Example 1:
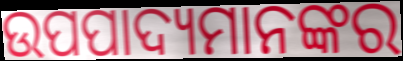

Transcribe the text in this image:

ଉପପାଦ୍ୟମାନଙ୍କର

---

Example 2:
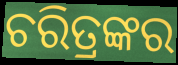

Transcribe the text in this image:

ଚରିତ୍ରଙ୍କର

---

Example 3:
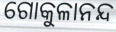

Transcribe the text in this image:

ଗୋକୁଳାନନ୍ଦ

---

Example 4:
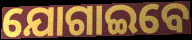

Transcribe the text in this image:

ଯୋଗାଇବେ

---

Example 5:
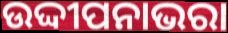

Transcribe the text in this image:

ଉଦ୍ଦୀପନାଭରା